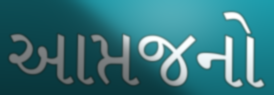
આપ્તજનો